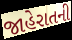
જાહેરાતની